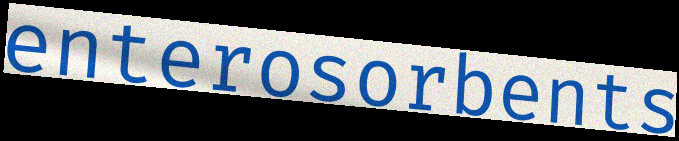
enterosorbents